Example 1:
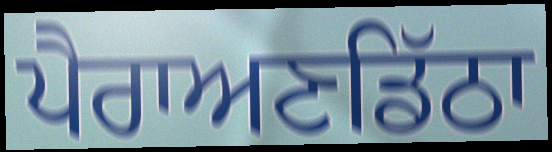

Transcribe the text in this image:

ਪੈਰਾਅਣਡਿੱਠਾ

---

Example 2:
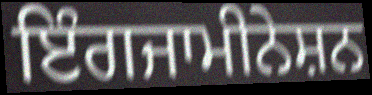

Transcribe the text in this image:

ਇੰਗਜਾਮੀਨੇਸ਼ਨ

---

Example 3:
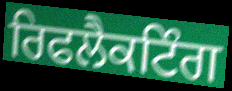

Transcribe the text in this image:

ਰਿਫਲੈਕਟਿੰਗ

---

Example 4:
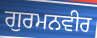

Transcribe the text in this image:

ਗੁਰਮਨਵੀਰ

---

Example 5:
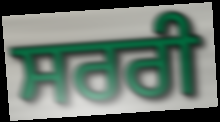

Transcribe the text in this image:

ਸਰਰੀ